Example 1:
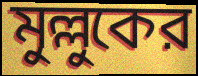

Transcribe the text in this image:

মুল্লুকের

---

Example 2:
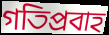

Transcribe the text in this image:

গতিপ্রবাহ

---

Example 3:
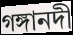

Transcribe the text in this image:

গঙ্গানদী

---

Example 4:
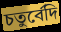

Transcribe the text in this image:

চতুর্বেদি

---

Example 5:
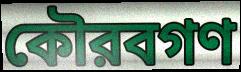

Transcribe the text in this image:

কৌরবগণ